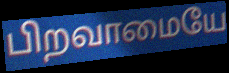
பிறவாமையே